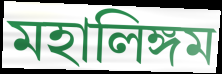
মহালিঙ্গম